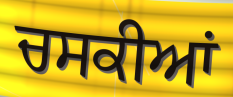
ਚਸਕੀਆਂ